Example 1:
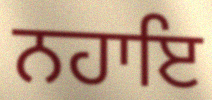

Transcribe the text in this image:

ਨਹਾਇ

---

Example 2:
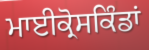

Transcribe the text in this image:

ਮਾਈਕ੍ਰੋਸਕਿੰਡਾਂ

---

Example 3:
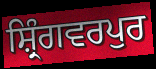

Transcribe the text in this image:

ਸ਼੍ਰਿੰਗਵਰਪੁਰ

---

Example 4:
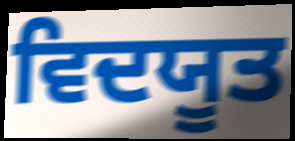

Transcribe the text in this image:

ਵਿਦਯੂਤ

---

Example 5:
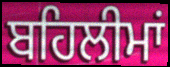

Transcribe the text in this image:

ਬਹਿਲੀਮਾਂ